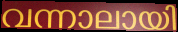
വന്നാലായി